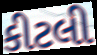
કીટલી